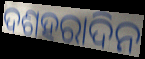
ଦଶହରାଦିନ